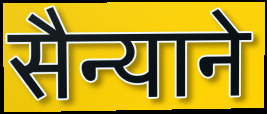
सैन्याने